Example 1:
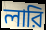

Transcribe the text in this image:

লারি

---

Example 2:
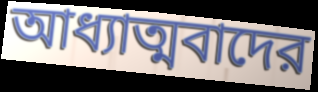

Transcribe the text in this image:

আধ্যাত্মবাদের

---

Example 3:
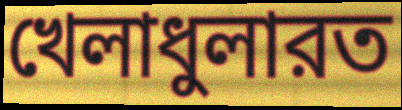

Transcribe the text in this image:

খেলাধুলারত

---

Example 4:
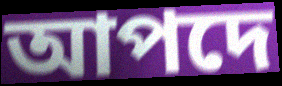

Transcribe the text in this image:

আপদে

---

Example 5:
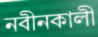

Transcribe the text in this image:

নবীনকালী